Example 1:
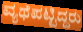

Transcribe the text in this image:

ವ್ಯಥೆಪಟ್ಟಿದ್ದರು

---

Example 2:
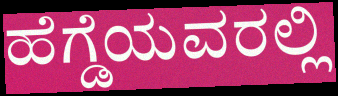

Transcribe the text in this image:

ಹೆಗ್ಡೆಯವರಲ್ಲಿ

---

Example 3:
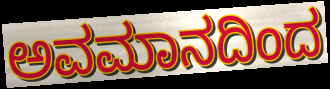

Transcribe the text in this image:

ಅವಮಾನದಿಂದ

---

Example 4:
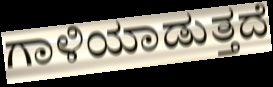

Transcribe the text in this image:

ಗಾಳಿಯಾಡುತ್ತದೆ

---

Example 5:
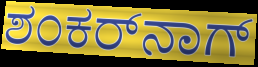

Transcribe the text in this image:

ಶಂಕರ್‌ನಾಗ್